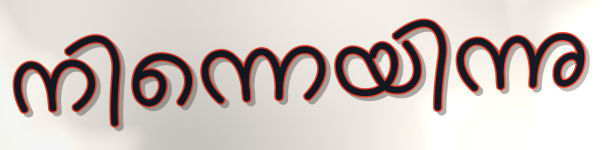
നിന്നെയിന്നു